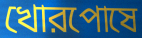
খোরপোষে